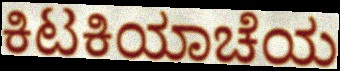
ಕಿಟಕಿಯಾಚೆಯ